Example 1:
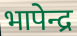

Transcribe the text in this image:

भापेन्द्र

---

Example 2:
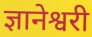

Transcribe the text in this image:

ज्ञानेश्वरी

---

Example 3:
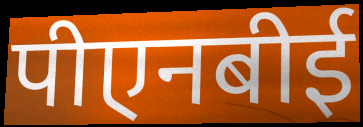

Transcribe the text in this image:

पीएनबीई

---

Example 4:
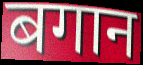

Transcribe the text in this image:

बगान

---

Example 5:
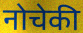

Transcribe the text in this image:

नोचेकी